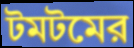
টমটমের